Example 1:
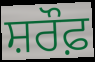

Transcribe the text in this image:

ਸ਼ਰੌਫ਼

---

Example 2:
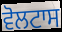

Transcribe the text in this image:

ਵੋਲਟਾਸ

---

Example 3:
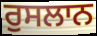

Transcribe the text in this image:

ਰੁਸਲਾਨ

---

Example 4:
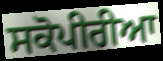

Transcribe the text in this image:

ਸਕੋਪੀਰੀਆ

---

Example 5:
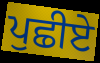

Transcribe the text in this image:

ਪੁਛੀਏ